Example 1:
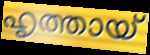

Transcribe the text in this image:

ഹൃത്തായ്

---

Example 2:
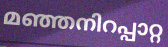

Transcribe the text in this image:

മഞ്ഞനിറപ്പാറ്റ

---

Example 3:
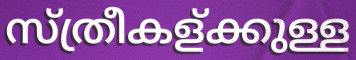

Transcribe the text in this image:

സ്ത്രീകള്ക്കുള്ള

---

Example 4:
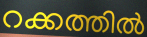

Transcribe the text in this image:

റക്കത്തിൽ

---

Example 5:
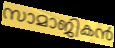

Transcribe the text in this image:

സാമാജികൻ